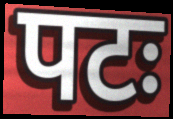
पटः